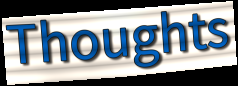
Thoughts